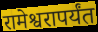
रामेश्वरापर्यंत